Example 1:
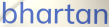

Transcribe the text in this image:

bhartan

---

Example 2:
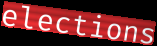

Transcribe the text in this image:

elections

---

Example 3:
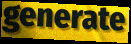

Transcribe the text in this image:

generate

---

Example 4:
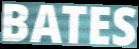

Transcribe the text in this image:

BATES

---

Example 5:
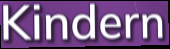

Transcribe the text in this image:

Kindern